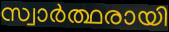
സ്വാർത്ഥരായി